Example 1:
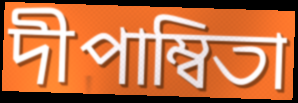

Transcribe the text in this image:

দীপাম্বিতা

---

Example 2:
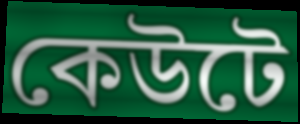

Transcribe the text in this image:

কেউটে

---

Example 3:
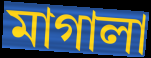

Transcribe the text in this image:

মাগালা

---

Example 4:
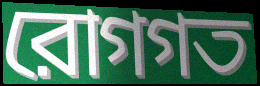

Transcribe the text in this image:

রোগগত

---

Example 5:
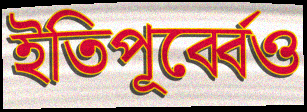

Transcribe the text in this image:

ইতিপূর্ব্বেও